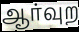
ஆர்வுற